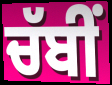
ਚੱਬੀਂ